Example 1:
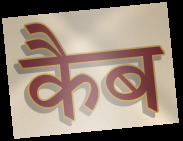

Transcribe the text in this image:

कैब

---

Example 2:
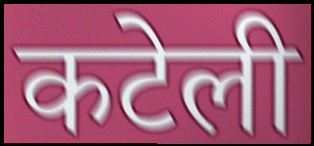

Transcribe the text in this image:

कटेली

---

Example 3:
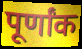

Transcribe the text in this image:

पूर्णांक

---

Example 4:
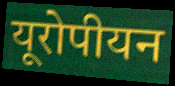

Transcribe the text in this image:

यूरोपीयन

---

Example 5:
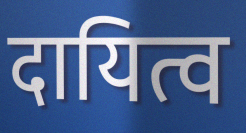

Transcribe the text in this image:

दायित्व